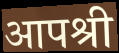
आपश्री